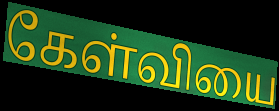
கேள்வியை